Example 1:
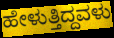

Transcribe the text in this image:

ಹೇಳುತ್ತಿದ್ದವಳು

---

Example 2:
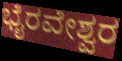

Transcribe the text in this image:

ಭೈರವೇಶ್ವರ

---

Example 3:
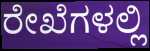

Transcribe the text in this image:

ರೇಖೆಗಳಲ್ಲಿ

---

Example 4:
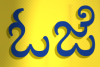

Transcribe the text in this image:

ಓಜೆ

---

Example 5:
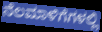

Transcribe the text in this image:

ನೆಲಮಾಳಿಗೆಗಳಲ್ಲಿ